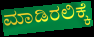
ಮಾಡಿರಲಿಕ್ಕೆ